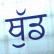
ਥੁੱਡ